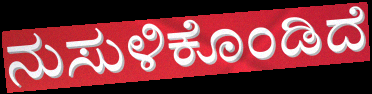
ನುಸುಳಿಕೊಂಡಿದೆ